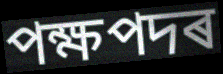
পক্ষপদৰ